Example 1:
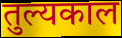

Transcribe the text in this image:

तुल्यकाल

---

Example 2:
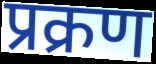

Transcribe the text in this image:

प्रक्रण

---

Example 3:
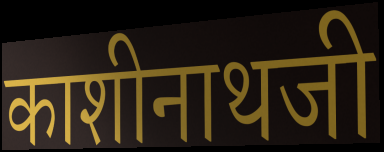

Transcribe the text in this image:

काशीनाथजी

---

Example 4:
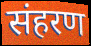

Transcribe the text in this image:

संहरण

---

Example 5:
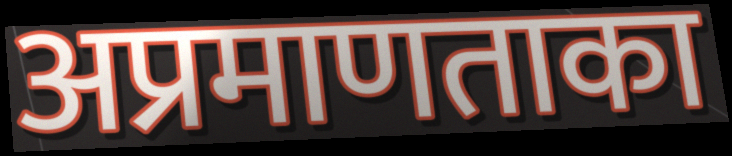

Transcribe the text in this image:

अप्रमाणताका